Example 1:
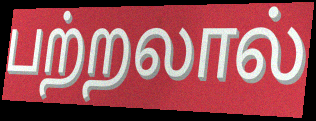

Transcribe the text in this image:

பற்றலால்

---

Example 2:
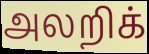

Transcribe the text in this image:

அலறிக்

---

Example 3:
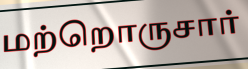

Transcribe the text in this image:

மற்றொருசார்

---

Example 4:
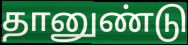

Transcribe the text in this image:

தானுண்டு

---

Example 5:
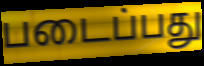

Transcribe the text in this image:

படைப்பது